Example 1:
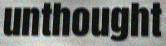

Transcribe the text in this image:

unthought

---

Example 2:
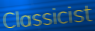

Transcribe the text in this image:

Classicist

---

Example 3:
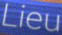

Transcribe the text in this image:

Lieu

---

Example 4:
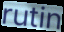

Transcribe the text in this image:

rutin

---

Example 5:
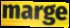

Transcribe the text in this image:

marge